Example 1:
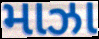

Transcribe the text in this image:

માઝા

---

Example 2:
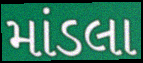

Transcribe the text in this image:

માંડલા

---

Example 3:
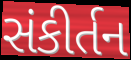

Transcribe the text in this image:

સંકીર્તન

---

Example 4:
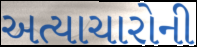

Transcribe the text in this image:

અત્યાચારોની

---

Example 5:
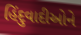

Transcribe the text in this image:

હિંદુવાદીઓને